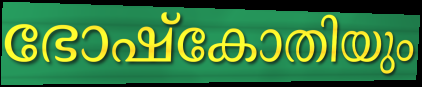
ഭോഷ്കോതിയും